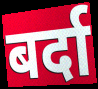
बर्दा